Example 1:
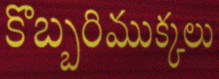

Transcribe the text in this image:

కొబ్బరిముక్కలు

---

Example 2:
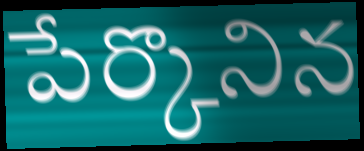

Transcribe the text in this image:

పేర్కొనిన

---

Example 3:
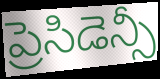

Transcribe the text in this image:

ప్రెసిడెన్సీ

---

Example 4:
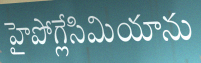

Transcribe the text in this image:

హైపోగ్లేసిమియాను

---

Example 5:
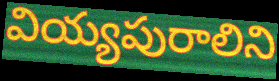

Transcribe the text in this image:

వియ్యపురాలిని